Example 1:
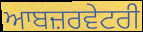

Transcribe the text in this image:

ਆਬਜ਼ਰਵੇਟਰੀ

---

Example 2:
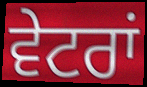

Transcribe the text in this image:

ਵੇਟਰਾਂ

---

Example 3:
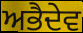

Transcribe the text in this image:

ਅਭੈਦੇਵ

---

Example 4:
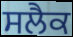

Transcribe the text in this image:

ਸਲੈਕ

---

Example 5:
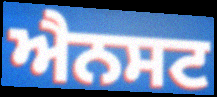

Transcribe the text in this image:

ਐਨਸਟ